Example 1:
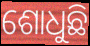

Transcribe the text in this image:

ଶୋଧୁଛି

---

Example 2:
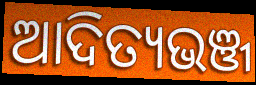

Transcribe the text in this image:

ଆଦିତ୍ୟଭଞ୍ଜ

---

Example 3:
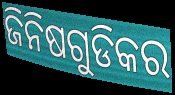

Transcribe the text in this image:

ଜିନିଷଗୁଡିକର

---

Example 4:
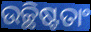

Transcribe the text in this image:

ଉଚ୍ଛିଷ୍ଟତାଂ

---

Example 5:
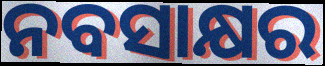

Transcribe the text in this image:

ନବସାକ୍ଷର